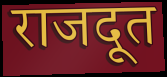
राजदूत